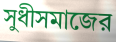
সুধীসমাজের